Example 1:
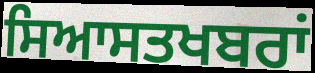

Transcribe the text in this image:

ਸਿਆਸਤਖਬਰਾਂ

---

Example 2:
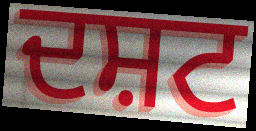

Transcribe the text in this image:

ਦਸ਼ਟ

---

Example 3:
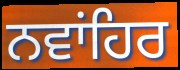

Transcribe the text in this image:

ਨਵਾਂਹਿਰ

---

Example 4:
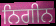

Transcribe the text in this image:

ਨਿਗੀਨ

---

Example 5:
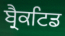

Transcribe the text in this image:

ਬ੍ਰੈਕਟਿਡ